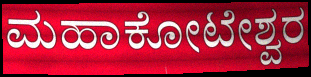
ಮಹಾಕೋಟೇಶ್ವರ